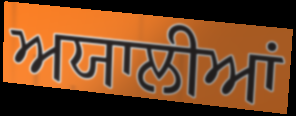
ਅਯਾਲੀਆਂ